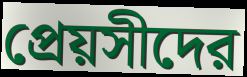
প্রেয়সীদের